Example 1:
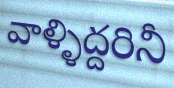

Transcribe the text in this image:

వాళ్ళిద్దరినీ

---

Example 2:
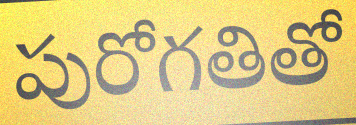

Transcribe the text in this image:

పురోగతితో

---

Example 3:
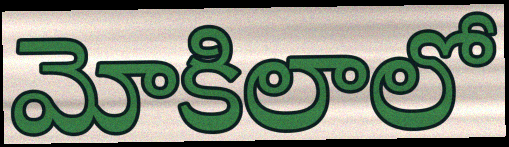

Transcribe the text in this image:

మోకిలాలో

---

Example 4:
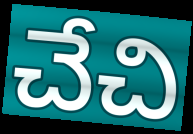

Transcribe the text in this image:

చేచి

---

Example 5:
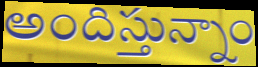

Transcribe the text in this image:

అందిస్తున్నాం